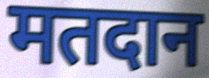
मतदान